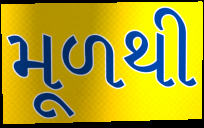
મૂળથી